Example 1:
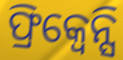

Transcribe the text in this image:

ଫ୍ରିକ୍ୱେନ୍ସି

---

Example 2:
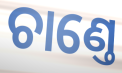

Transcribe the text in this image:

ଚାଣ୍ତେ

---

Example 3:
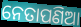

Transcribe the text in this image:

ନେତାପଣିଆ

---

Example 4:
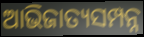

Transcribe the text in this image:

ଆଭିଜାତ୍ୟସମ୍ପନ୍ନ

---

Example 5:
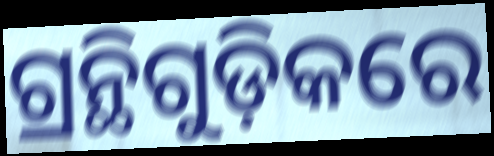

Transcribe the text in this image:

ଗ୍ରନ୍ଥିଗୁଡ଼ିକରେ